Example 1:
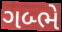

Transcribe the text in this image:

ગબ્ભે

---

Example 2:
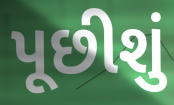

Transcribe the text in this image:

પૂછીશું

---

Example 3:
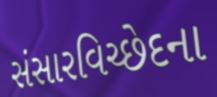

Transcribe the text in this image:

સંસારવિચ્છેદના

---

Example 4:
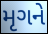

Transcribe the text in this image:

મૃગને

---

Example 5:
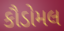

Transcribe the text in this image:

કૌડોમલ